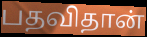
பதவிதான்